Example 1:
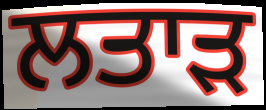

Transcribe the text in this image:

ਲਤਾੜ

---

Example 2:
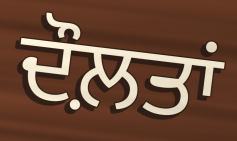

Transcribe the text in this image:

ਦੌਲ਼ਤਾਂ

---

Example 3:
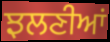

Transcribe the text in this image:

ਝਲਣੀਆਂ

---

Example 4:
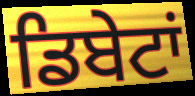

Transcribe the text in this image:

ਡਿਬੇਟਾਂ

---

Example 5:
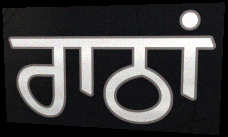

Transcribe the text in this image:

ਰਾਠਾਂ